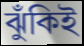
ঝুঁকিই